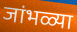
जांभळ्या